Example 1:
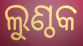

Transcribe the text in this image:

ଲୁଣ୍ଠକ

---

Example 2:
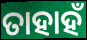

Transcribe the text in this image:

ତାହାହଁ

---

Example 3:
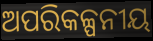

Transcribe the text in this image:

ଅପରିକଳ୍ପନୀୟ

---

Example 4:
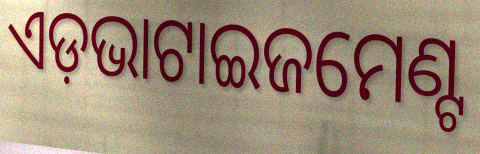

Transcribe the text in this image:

ଏଡ଼ଭାଟାଇଜମେଣ୍ଟ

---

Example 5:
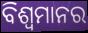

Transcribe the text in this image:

ବିଶ୍ୱମାନର